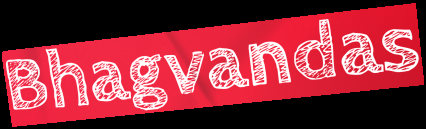
Bhagvandas